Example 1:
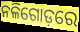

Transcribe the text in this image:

ନଳିଗୋଡ଼ରେ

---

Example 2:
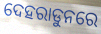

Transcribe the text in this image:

ଦେହରାଡୁନରେ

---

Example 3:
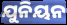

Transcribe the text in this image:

ଯୁନିୟନ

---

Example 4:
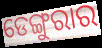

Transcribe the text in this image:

ଡେଙ୍ଗୁରାର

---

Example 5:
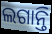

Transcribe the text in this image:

ଲଗାନ୍ତି